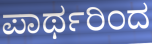
ಪಾರ್ಥರಿಂದ